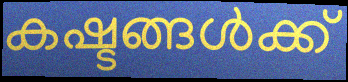
കഷ്ടങ്ങൾക്ക്